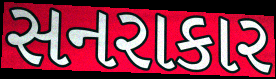
સનરાકાર